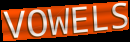
VOWELS